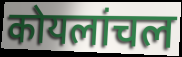
कोयलांचल